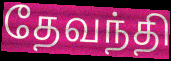
தேவந்தி